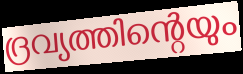
ദ്രവ്യത്തിന്റെയും